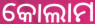
କୋଲାମ